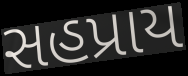
સહપ્રાય